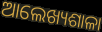
ଆଲେଖ୍ୟଶାଳା